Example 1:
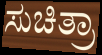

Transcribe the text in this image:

ಸುಚಿತ್ರಾ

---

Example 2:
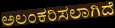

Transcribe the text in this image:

ಅಲಂಕರಿಸಲಾಗಿದೆ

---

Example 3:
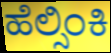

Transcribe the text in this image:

ಹೆಲ್ಸಿಂಕಿ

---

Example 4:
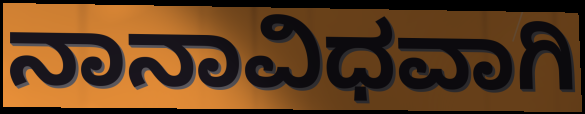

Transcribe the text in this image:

ನಾನಾವಿಧವಾಗಿ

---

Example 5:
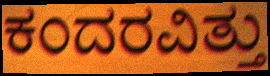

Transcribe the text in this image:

ಕಂದರವಿತ್ತು